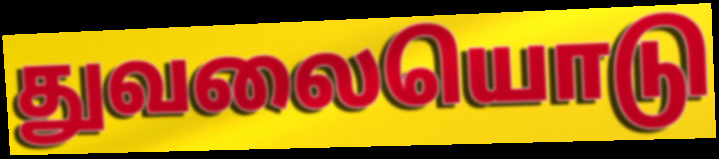
துவலையொடு